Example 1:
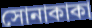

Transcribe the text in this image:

সোনাকাকা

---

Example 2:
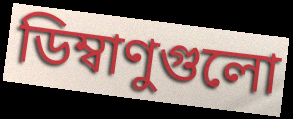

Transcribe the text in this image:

ডিম্বাণুগুলো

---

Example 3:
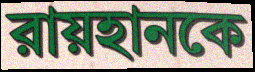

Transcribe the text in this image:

রায়হানকে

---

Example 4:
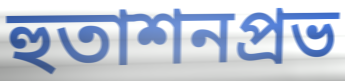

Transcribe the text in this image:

হুতাশনপ্রভ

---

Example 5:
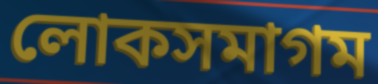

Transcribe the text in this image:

লোকসমাগম